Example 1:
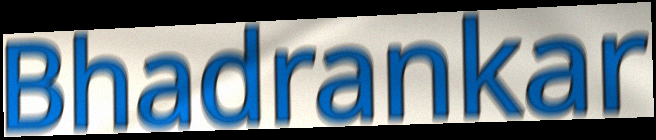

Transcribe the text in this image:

Bhadrankar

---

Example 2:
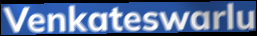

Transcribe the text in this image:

Venkateswarlu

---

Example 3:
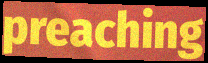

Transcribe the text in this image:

preaching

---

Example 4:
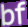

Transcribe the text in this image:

bf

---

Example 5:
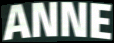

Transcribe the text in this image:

ANNE